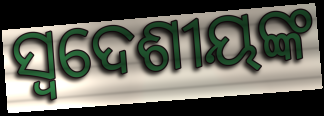
ସ୍ଵଦେଶୀୟଙ୍କ